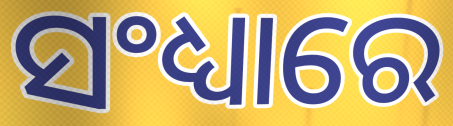
ସଂଧ୍ୟାରେ